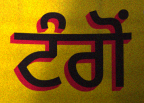
ਟੰਗੋਂ